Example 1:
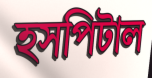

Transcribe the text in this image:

হসপিটাল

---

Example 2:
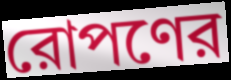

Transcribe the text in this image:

রোপণের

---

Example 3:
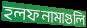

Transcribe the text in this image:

হলফনামাগুলি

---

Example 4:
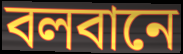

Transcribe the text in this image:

বলবানে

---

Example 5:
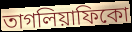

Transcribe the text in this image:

তাগলিয়াফিকো